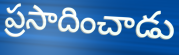
ప్రసాదించాడు